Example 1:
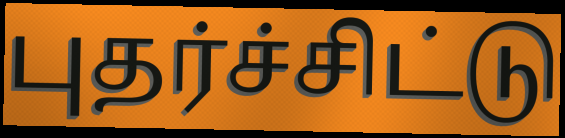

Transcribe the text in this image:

புதர்ச்சிட்டு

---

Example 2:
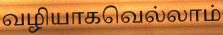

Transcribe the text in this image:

வழியாகவெல்லாம்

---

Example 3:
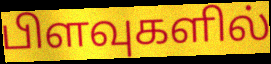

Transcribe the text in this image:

பிளவுகளில்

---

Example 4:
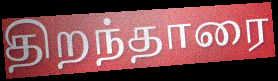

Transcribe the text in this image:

திறந்தாரை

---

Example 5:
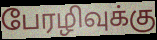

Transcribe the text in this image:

பேரழிவுக்கு